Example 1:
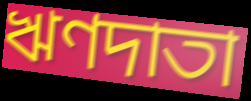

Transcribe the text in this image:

ঋণদাতা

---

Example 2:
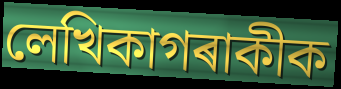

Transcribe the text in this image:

লেখিকাগৰাকীক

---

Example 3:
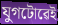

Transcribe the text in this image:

যুগটোৱেই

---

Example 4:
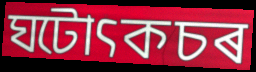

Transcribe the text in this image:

ঘটোৎকচৰ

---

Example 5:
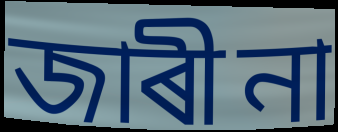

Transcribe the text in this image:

জাৰীনা